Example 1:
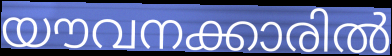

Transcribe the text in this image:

യൗവനക്കാരിൽ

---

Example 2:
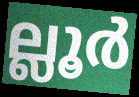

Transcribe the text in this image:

ല്ലൂർ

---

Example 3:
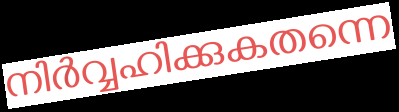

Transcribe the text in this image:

നിർവ്വഹിക്കുകതന്നെ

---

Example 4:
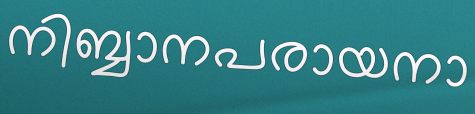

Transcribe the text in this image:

നിബ്ബാനപരായനാ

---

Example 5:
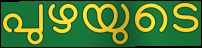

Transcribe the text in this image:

പുഴയുടെ